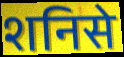
शनिसे